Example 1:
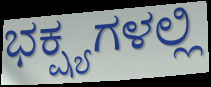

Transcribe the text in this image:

ಭಕ್ಷ್ಯಗಳಲ್ಲಿ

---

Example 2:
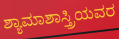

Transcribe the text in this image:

ಶ್ಯಾಮಾಶಾಸ್ತ್ರಿಯವರ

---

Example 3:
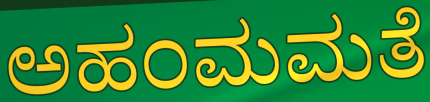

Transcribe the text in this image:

ಅಹಂಮಮತೆ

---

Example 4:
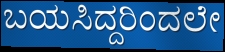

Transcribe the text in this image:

ಬಯಸಿದ್ದರಿಂದಲೇ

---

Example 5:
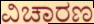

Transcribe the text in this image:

ವಿಚಾರಣ